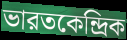
ভারতকেন্দ্রিক